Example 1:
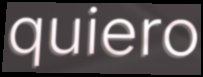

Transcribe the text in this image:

quiero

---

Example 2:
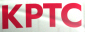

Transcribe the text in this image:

KPTC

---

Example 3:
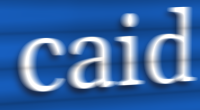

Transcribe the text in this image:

caid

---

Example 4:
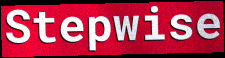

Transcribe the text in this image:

Stepwise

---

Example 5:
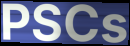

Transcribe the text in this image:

PSCs